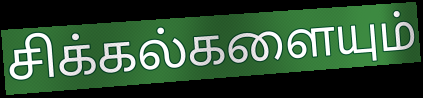
சிக்கல்களையும்